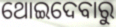
ଥୋଇଦେବାରୁ